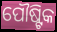
ପୌଷ୍ଟିକ